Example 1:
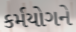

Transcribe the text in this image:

કર્મયોગને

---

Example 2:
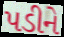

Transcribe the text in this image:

પડીને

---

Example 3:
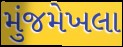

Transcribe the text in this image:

મુંજમેખલા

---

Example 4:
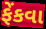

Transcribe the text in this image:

ફેંકવા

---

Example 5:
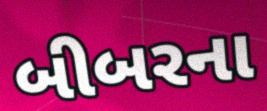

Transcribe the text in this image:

બીબરના